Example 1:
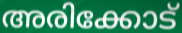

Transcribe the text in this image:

അരിക്കോട്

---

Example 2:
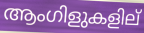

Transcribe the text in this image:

ആംഗിളുകളില്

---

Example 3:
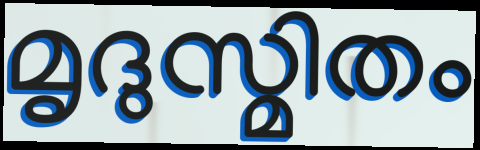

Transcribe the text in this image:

മൃദുസ്മിതം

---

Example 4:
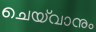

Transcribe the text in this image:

ചെയ്‌വാനും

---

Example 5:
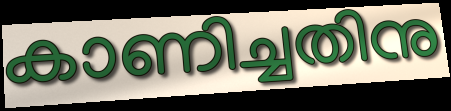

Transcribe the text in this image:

കാണിച്ചതിനു